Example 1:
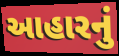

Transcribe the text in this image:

આહારનું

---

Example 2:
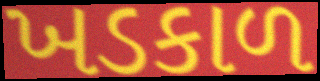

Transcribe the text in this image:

ખડકાળ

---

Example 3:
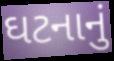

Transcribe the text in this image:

ઘટનાનું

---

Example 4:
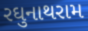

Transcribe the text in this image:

રઘુનાથરામ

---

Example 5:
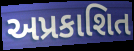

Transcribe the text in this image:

અપ્રકાશિત